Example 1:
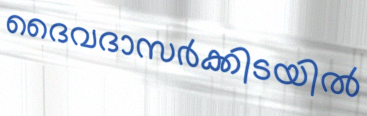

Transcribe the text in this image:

ദൈവദാസർക്കിടയിൽ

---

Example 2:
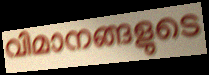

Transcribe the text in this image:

വിമാനങ്ങളുടെ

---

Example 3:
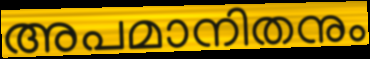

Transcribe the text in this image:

അപമാനിതനും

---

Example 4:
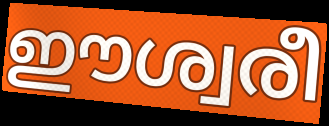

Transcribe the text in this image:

ഈശ്വരീ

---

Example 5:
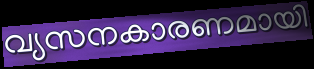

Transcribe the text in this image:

വ്യസനകാരണമായി